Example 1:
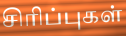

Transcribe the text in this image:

சிரிப்புகள்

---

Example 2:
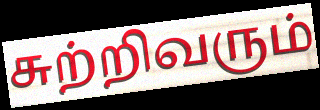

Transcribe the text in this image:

சுற்றிவரும்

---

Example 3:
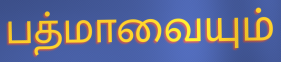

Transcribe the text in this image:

பத்மாவையும்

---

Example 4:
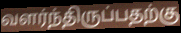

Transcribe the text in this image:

வளர்ந்திருப்பதற்கு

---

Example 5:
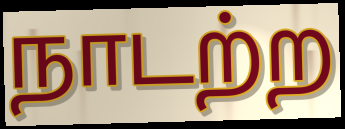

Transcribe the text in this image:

நாடற்ற